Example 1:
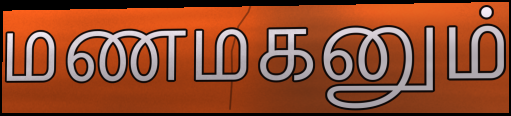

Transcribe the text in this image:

மணமகனும்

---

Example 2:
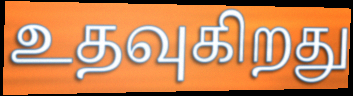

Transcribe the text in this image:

உதவுகிறது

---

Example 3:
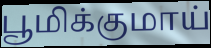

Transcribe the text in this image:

பூமிக்குமாய்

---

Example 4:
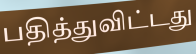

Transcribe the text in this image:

பதித்துவிட்டது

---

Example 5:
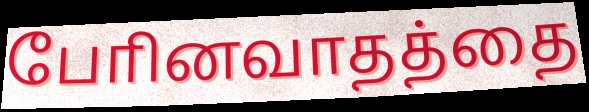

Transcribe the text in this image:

பேரினவாதத்தை